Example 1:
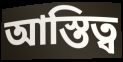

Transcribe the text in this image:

আস্তিত্ব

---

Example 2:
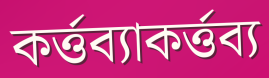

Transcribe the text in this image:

কর্ত্তব্যাকর্ত্তব্য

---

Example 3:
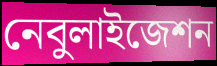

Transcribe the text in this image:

নেবুলাইজেশন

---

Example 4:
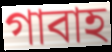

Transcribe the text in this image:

গাবাহ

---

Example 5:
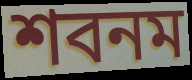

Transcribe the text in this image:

শবনম